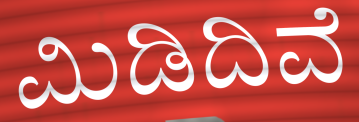
ಮಿಡಿದಿವೆ